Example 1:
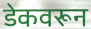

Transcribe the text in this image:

डेकवरून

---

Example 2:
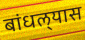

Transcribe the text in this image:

बांधल्यास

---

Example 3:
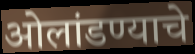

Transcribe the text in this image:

ओलांडण्याचे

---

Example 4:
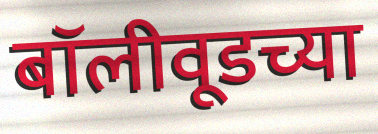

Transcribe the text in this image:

बॉलीवूडच्या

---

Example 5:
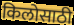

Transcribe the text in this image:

किलोसाठी